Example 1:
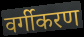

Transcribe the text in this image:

वर्गीकरण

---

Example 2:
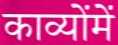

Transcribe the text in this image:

काव्योंमें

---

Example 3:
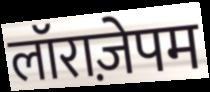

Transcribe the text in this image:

लॉराज़ेपम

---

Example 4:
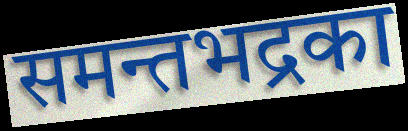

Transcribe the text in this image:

समन्तभद्रका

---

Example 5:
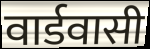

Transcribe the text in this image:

वार्डवासी